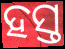
ହସ୍ତ